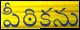
పీఠికను